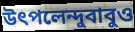
উৎপলেন্দুবাবুও